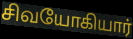
சிவயோகியார்